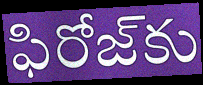
ఫిరోజ్‌కు